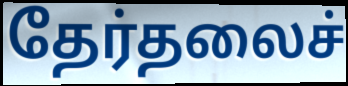
தேர்தலைச்